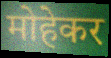
मोहेकर